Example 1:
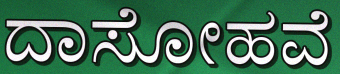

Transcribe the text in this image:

ದಾಸೋಹವೆ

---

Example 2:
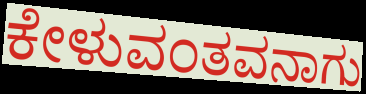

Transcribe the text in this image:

ಕೇಳುವಂತವನಾಗು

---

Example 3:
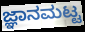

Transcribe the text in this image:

ಜ್ಞಾನಮಟ್ಟ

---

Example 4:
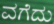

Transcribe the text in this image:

ವಗೆದು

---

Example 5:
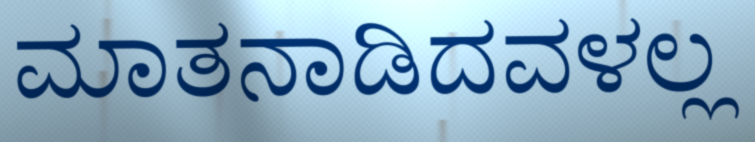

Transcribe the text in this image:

ಮಾತನಾಡಿದವಳಲ್ಲ